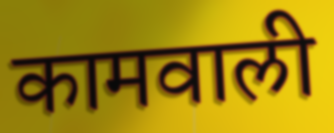
कामवाली